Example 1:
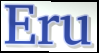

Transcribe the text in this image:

Eru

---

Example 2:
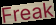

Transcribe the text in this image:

Freak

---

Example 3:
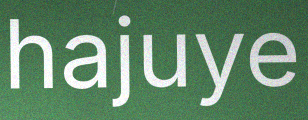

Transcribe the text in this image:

hajuye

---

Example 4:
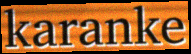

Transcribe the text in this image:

karanke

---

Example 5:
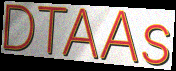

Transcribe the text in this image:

DTAAs